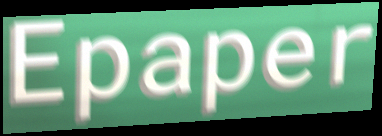
Epaper